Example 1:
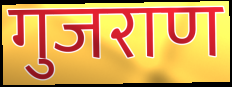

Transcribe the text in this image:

गुजराण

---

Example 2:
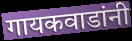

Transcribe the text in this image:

गायकवाडांनी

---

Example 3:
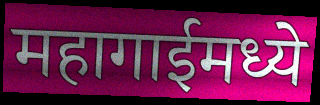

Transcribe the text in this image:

महागाईमध्ये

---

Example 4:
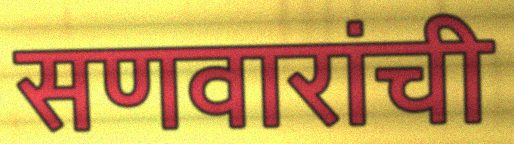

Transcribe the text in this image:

सणवारांची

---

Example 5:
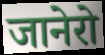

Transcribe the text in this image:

जानेरो